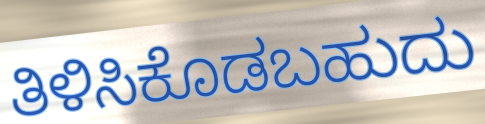
ತಿಳಿಸಿಕೊಡಬಹುದು